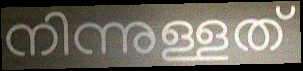
നിന്നുള്ളത്